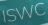
ISWC